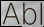
Abl